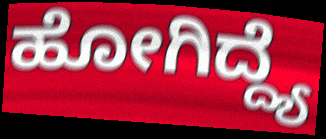
ಹೋಗಿದ್ದ್ಯೆ